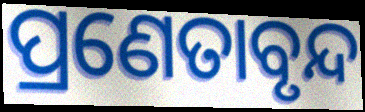
ପ୍ରଣେତାବୃନ୍ଦ